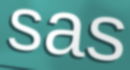
sas